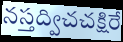
నస్తద్విచచక్షిరే